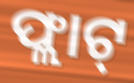
ଫ୍ଲାଟ୍